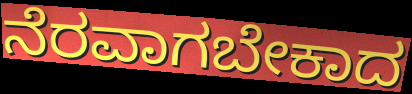
ನೆರವಾಗಬೇಕಾದ